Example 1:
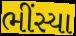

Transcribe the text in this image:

ભીંસ્યા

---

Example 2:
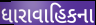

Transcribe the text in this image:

ધારાવાહિકના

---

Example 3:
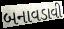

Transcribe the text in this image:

બનાવડાવી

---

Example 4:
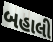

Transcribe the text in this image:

બહાલી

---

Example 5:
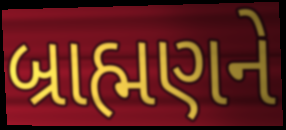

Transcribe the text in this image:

બ્રાહ્મણને